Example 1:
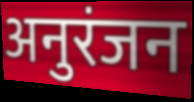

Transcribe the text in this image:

अनुरंजन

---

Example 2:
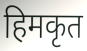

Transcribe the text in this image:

हिमकृत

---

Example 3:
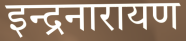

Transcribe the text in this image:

इन्द्रनारायण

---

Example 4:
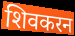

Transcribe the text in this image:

शिवकरन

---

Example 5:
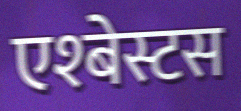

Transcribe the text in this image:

एश्बेस्टस